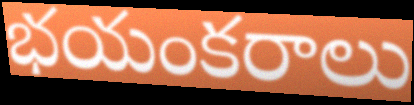
భయంకరాలు